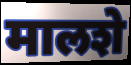
मालशे